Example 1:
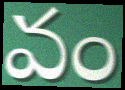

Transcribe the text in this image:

వం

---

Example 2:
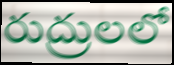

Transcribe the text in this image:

రుద్రులలో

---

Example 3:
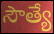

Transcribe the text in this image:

సౌత్యే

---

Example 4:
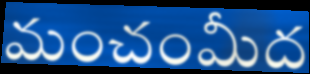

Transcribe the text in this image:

మంచంమీద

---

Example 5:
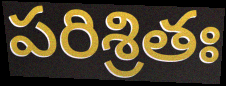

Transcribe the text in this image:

పరిశ్రితః